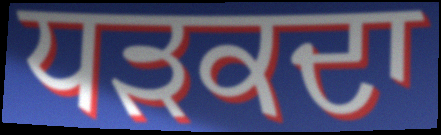
ਧੜਕਦਾ